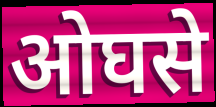
ओघसे